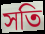
সতি